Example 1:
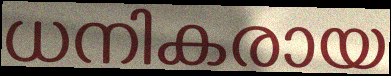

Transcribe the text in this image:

ധനികരായ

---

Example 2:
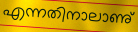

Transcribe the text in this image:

എന്നതിനാലാണു്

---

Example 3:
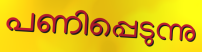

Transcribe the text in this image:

പണിപ്പെടുന്നു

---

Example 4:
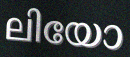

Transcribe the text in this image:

ലിയോ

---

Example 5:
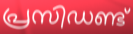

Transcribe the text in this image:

പ്രസിഡണ്ട്